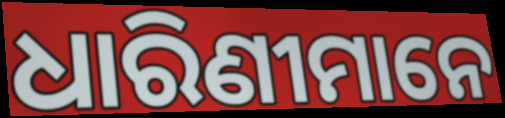
ଧାରିଣୀମାନେ